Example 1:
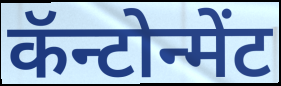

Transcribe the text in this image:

कॅन्टोन्मेंट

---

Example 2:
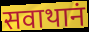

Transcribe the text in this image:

सवाथानं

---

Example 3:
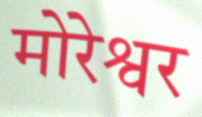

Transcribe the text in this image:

मोरेश्वर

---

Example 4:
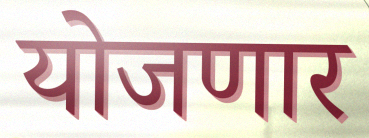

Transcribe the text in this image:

योजणार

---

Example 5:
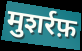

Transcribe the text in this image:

मुशर्रफ़